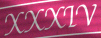
XXXIV